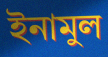
ইনামুল